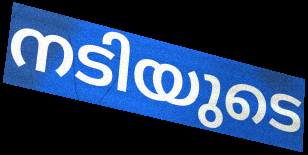
നടിയുടെ